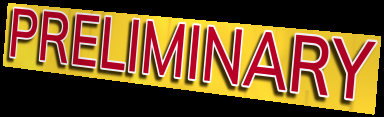
PRELIMINARY